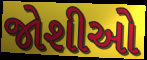
જોશીઓ